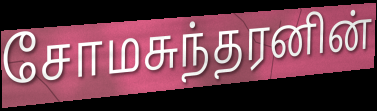
சோமசுந்தரனின்